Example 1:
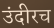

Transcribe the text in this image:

उंदीरच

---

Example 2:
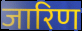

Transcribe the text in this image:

जारिण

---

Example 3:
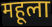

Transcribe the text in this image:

महूला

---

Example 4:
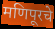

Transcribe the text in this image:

मणिपूरचे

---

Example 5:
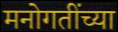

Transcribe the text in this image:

मनोगतींच्या